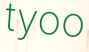
tyoo